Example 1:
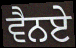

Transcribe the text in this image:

ਵੈਨਏ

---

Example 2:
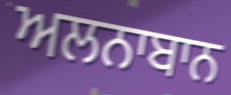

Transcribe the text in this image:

ਅਲਨਾਬਾਨ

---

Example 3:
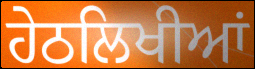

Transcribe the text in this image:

ਹੇਠਲਿਖੀਆਂ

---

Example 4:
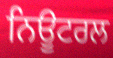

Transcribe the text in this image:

ਨਿਊਟਰਲ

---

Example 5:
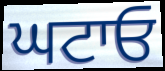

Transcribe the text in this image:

ਘਟਾਓ